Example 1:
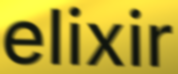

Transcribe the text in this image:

elixir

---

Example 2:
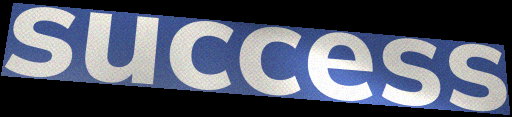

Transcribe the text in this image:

success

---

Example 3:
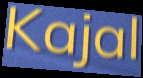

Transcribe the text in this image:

Kajal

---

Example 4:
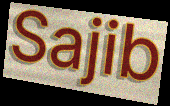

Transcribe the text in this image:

Sajib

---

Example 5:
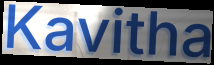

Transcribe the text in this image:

Kavitha